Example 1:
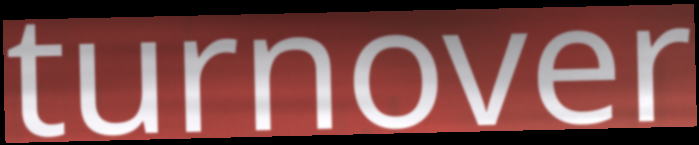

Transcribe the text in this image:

turnover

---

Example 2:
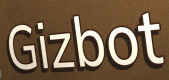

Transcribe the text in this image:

Gizbot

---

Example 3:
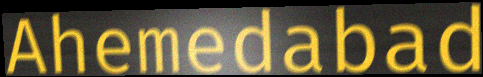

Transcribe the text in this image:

Ahemedabad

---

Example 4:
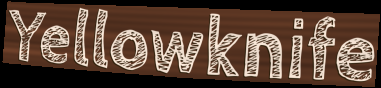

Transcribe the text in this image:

Yellowknife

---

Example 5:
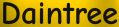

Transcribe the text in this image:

Daintree